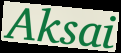
Aksai